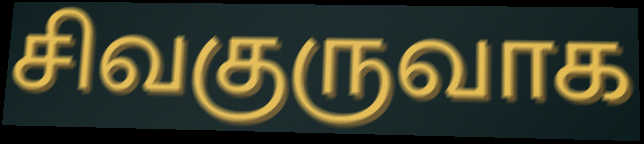
சிவகுருவாக